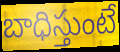
బాధిస్తుంటే